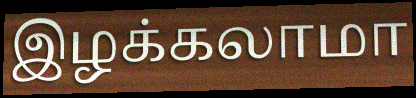
இழக்கலாமா